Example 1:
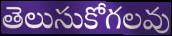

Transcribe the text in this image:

తెలుసుకోగలవు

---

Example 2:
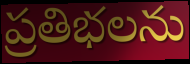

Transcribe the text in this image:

ప్రతిభలను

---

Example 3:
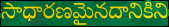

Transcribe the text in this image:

సాధారణమైనదానికిని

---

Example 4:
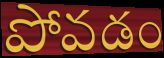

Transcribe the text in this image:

పోవడం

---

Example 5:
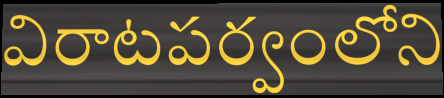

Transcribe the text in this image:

విరాటపర్వంలోని